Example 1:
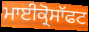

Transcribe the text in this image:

ਮਾਈਕ੍ਰੋਸਾੱਫਟ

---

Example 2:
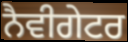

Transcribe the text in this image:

ਨੈਵੀਗੇਟਰ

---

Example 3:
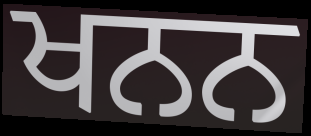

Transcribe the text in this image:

ਖਨਨ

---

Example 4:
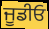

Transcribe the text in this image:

ਜੂਡੀਓ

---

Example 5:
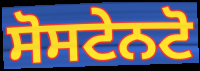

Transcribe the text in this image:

ਸੋਸਟੇਨਟੋ